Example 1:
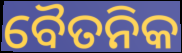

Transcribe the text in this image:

ବୈତନିକ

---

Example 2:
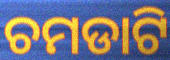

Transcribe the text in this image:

ଚମଡାଟି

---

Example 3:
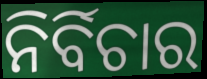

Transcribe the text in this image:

ନିର୍ବିଚାର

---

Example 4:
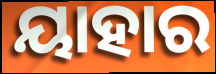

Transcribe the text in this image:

ୟାହାର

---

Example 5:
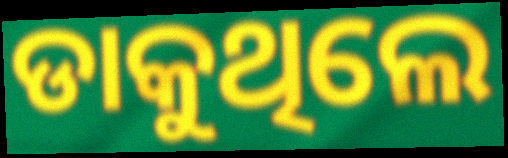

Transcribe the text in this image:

ଡାକୁଥିଲେ